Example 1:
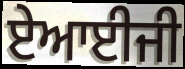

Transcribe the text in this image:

ਏਆਈਜੀ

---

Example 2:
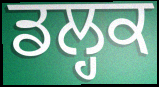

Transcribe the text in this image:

ਡਲ੍ਹਕ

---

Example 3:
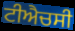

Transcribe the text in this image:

ਟੀਐਚਸੀ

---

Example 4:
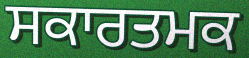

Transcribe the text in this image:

ਸਕਾਰਤਮਕ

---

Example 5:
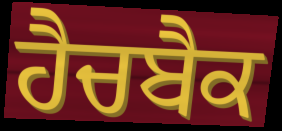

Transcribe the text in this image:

ਹੈਚਬੈਕ